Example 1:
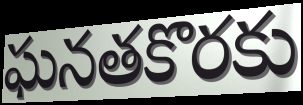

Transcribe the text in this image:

ఘనతకొరకు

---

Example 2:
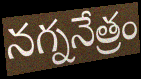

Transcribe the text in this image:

నగ్ననేత్రం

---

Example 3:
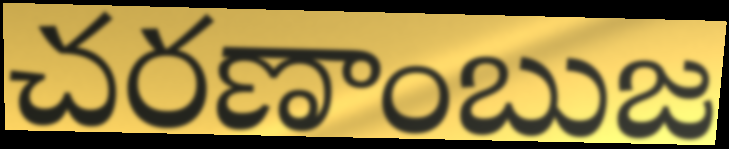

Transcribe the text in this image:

చరణాంబుజ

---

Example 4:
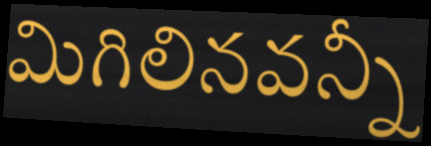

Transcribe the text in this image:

మిగిలినవన్నీ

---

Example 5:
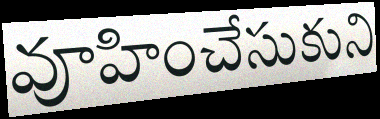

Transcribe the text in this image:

వూహించేసుకుని